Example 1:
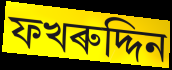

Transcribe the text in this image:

ফখৰুদ্দিন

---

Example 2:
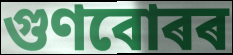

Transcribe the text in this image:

গুণবোৰৰ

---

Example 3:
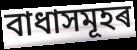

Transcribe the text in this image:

বাধাসমূহৰ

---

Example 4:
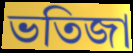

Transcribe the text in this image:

ভতিজা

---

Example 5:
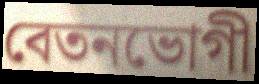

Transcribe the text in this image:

বেতনভোগী